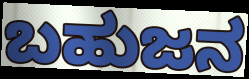
ಬಹುಜನ